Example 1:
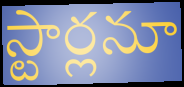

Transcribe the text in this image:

స్టార్లనూ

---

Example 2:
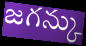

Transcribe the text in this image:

జగన్కు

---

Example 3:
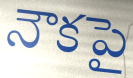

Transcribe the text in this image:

నౌకపై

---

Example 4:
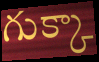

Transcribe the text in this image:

గుక్కా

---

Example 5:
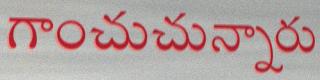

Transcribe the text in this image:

గాంచుచున్నారు